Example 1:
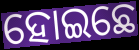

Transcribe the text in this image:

ହୋଇଛେ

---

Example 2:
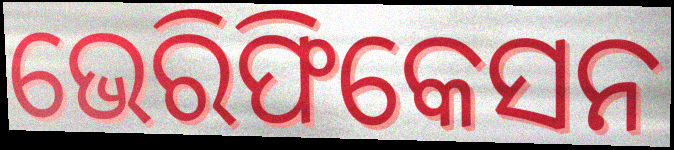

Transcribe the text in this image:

ଭେରିଫିକେସନ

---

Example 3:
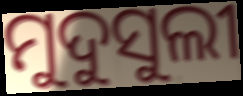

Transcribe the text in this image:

ମୁଦୁସୁଲୀ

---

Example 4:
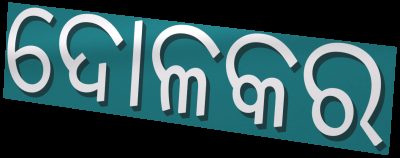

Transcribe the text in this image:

ଦୋଳକର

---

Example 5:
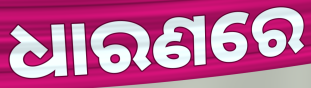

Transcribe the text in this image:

ଧାରଣରେ